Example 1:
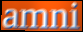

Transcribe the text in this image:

amni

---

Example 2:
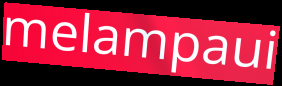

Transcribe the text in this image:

melampaui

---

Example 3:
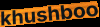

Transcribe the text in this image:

khushboo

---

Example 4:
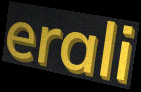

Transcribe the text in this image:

erali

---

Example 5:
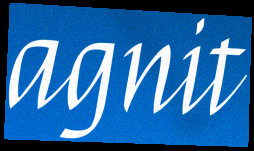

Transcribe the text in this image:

agnit